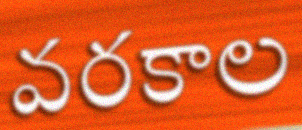
వరకాల